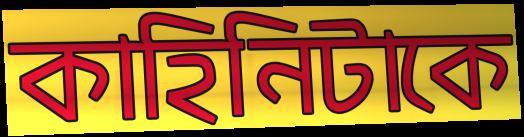
কাহিনিটাকে